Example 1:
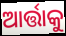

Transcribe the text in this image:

ଆର୍ତ୍ତାକୁ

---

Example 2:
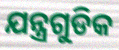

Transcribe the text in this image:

ଯନ୍ତ୍ରଗୁଡିକ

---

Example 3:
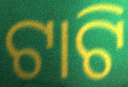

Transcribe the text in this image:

ଟାଟି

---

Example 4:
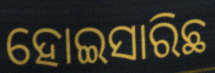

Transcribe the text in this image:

ହୋଇସାରିଛ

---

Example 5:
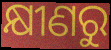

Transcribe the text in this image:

କ୍ଷୀଣରୁ